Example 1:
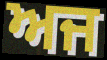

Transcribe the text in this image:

ਅਜ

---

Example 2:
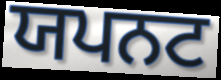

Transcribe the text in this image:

ਯਪਨਟ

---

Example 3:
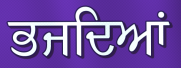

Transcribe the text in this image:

ਭਜਦਿਆਂ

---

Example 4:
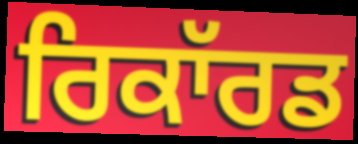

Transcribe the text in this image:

ਰਿਕਾੱਰਡ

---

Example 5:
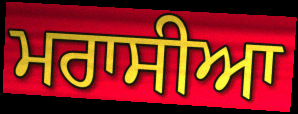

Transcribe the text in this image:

ਮਰਾਸੀਆ